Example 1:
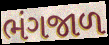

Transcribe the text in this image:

ભંગજાળ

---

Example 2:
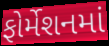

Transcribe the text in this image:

ફોર્મેશનમાં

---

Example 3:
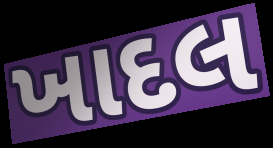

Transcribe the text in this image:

ખાદલ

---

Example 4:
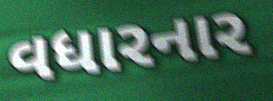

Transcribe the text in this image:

વધારનાર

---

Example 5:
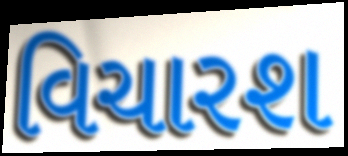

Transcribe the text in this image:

વિચારશ